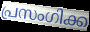
പ്രസംഗിക്ക